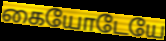
கையோடேயே